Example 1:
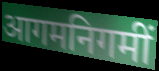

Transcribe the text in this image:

आगमनिगमीं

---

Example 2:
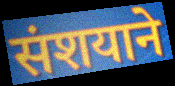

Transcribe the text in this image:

संशयाने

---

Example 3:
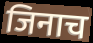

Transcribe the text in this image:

जिनाच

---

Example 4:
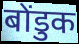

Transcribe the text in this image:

बोंडुक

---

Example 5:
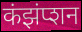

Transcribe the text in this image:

कंझंप्शन